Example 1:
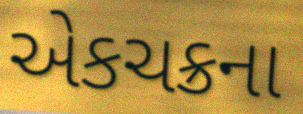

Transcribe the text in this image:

એકચક્રના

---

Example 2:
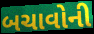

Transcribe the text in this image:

બચાવોની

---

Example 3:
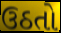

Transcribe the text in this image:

ઉઠતો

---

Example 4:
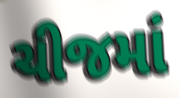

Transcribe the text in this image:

ચીજમાં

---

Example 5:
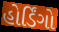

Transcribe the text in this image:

હોર્ડિંગો